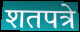
शतपत्रे